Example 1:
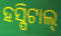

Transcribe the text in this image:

ହସ୍ପିଟାଲ୍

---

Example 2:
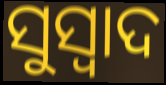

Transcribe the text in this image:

ସୁସ୍ୱାଦ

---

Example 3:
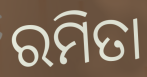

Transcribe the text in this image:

ରମିତା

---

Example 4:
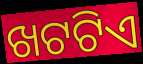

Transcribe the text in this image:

ଖଟଟିଏ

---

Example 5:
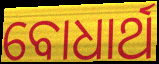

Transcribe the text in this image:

ବୋଧାର୍ଥ